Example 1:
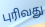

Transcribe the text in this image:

புரிவது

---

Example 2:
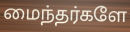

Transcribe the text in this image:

மைந்தர்களே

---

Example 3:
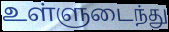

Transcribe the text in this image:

உள்ளுடைந்து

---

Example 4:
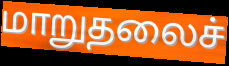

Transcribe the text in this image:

மாறுதலைச்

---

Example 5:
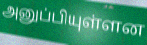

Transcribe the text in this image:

அனுப்பியுள்ளன